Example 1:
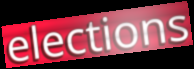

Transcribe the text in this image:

elections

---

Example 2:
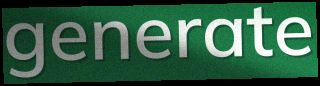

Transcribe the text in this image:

generate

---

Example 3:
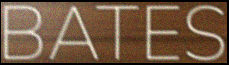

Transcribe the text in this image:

BATES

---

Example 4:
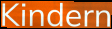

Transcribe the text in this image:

Kindern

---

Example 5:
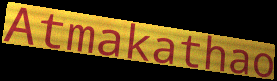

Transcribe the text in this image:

Atmakathao